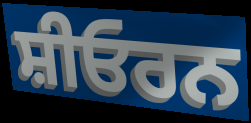
ਸ਼ੀਓਰਨ